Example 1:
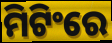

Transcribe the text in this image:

ମିଟିଂରେ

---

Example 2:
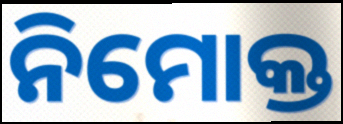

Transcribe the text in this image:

ନିମୋକ୍ତ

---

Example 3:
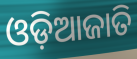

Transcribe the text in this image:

ଓଡ଼ିଆଜାତି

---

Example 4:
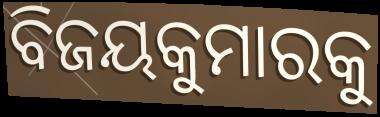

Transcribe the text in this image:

ବିଜୟକୁମାରକୁ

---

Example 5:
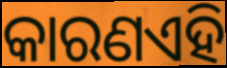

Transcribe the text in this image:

କାରଣଏହି